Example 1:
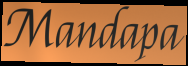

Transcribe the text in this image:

Mandapa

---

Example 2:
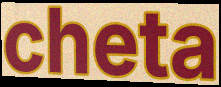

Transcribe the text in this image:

cheta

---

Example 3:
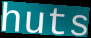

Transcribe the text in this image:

huts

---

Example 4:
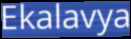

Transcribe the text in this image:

Ekalavya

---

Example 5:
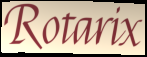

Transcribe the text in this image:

Rotarix